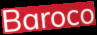
Baroco